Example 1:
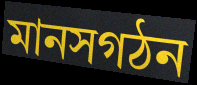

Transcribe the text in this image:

মানসগঠন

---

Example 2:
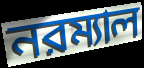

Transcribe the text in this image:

নরম্যাল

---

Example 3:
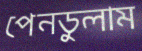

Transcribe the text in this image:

পেনডুলাম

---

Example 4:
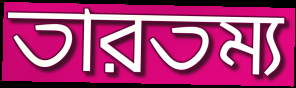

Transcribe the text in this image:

তারতম্য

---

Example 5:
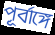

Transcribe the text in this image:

পূর্বাঙ্গে